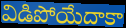
విడిపోయేదాకా